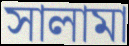
সালামা